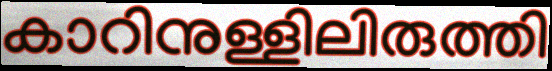
കാറിനുള്ളിലിരുത്തി